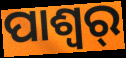
ପାଶ୍ୱର୍